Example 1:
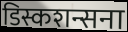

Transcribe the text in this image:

डिस्कशन्सना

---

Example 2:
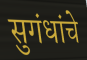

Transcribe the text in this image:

सुगंधांचे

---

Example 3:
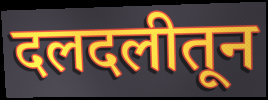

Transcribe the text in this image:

दलदलीतून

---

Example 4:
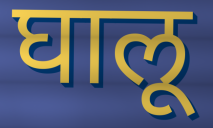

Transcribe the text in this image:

घालू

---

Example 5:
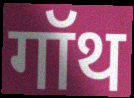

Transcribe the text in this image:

गॉथ